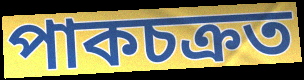
পাকচক্ৰত